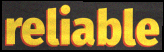
reliable